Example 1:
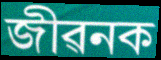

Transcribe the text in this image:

জীৱনক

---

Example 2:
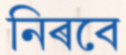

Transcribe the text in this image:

নিৰবে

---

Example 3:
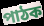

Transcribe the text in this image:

পাঠক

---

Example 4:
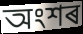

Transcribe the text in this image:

অংশৰ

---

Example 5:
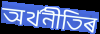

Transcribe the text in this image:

অৰ্থনীতিৰ